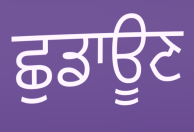
ਛੁਡਾਊਣ